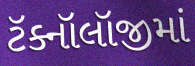
ટૅક્નૉલૉજીમાં